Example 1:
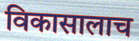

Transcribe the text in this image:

विकासालाच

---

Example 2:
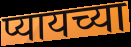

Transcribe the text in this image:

प्यायच्या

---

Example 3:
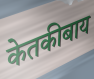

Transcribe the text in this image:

केतकीबाय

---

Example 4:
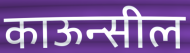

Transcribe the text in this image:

काऊन्सील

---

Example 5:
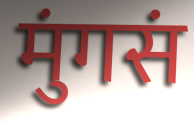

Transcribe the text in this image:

मुंगसं